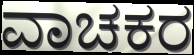
ವಾಚಕರ